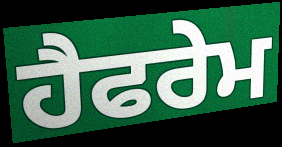
ਹੈਫਰੇਮ